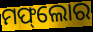
ମଫ୍‌ଲୋର